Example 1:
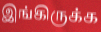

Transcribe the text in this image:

இங்கிருக்க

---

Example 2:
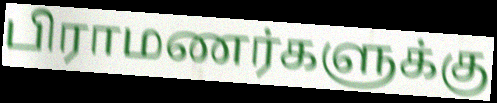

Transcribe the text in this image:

பிராமணர்களுக்கு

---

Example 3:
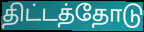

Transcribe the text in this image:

திட்டத்தோடு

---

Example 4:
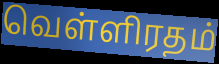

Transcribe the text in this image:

வெள்ளிரதம்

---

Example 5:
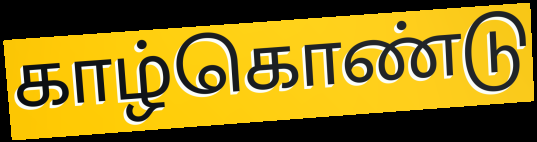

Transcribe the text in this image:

காழ்கொண்டு